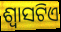
ଶ୍ଵାସଟିଏ